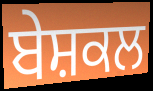
ਬੇਸ਼ਕਲ